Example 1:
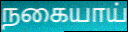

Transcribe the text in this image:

நகையாய்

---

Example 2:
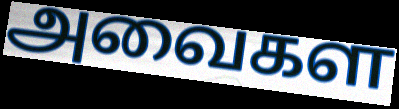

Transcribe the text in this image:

அவைகள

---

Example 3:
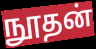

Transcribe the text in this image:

நூதன்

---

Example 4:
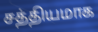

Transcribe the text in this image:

சத்தியமாக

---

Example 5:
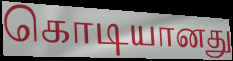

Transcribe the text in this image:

கொடியானது